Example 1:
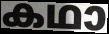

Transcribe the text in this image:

കഥാ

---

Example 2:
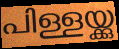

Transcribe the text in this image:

പിള്ളയ്ക്കു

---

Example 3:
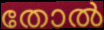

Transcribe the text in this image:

തോൽ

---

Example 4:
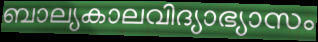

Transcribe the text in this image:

ബാല്യകാലവിദ്യാഭ്യാസം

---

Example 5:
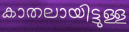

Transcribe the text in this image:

കാതലായിട്ടുള്ള